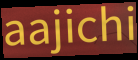
aajichi